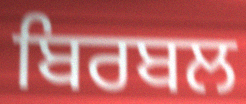
ਬਿਰਬਲ